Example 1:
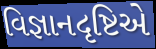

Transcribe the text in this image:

વિજ્ઞાનદૃષ્ટિએ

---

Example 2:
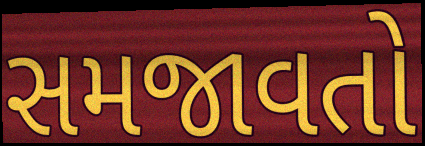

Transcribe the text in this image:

સમજાવતો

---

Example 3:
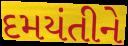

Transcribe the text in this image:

દમયંતીને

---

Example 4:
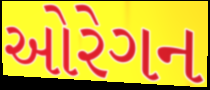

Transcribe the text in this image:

ઓરેગન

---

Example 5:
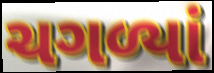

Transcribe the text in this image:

ચગળ્યાં